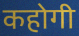
कहोगी